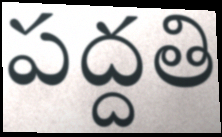
పద్దతి